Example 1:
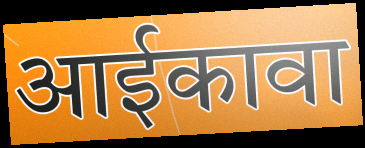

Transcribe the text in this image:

आईकावा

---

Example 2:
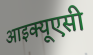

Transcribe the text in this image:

आइक्यूएसी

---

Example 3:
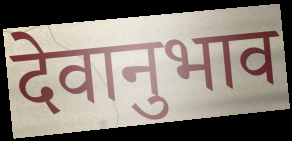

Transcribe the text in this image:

देवानुभाव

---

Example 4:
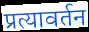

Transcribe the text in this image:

प्रत्यावर्तन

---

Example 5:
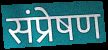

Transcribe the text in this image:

संप्रेषण